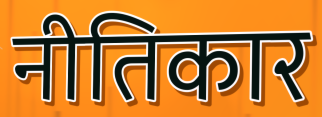
नीतिकार